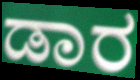
ಡಾರ